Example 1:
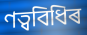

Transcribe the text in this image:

ণত্ববিধিৰ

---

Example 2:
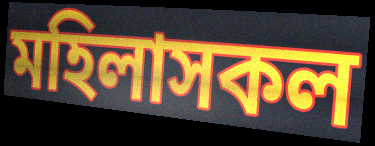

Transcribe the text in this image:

মহিলাসকল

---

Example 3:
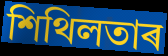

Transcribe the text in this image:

শিথিলতাৰ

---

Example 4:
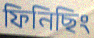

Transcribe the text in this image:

ফিনিছিং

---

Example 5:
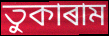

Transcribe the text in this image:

তুকাৰাম